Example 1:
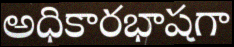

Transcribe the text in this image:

అధికారభాషగా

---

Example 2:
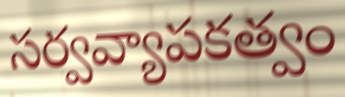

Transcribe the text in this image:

సర్వవ్యాపకత్వం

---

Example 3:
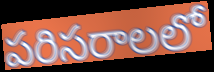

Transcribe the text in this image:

పరిసరాలలో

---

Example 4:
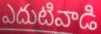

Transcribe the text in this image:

ఎదుటివాడి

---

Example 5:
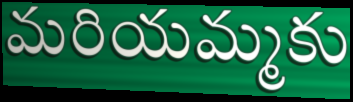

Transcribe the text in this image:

మరియమ్మకు